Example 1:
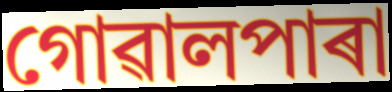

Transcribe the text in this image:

গোৱালপাৰা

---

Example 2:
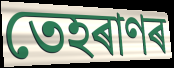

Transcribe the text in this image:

তেহৰাণৰ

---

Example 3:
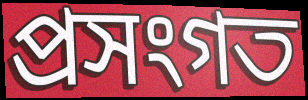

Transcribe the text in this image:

প্ৰসংগত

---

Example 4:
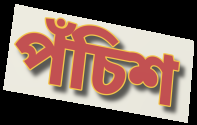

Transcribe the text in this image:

পঁচিশ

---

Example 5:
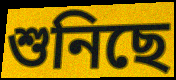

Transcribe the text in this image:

শুনিছে